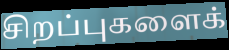
சிறப்புகளைக்